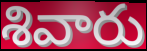
శివారు